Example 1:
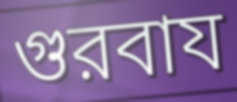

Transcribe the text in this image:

গুরবায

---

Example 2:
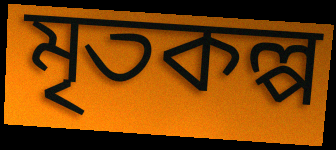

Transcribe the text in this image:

মৃতকল্প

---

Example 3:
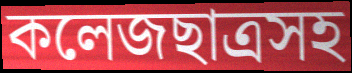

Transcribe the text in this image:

কলেজছাত্রসহ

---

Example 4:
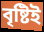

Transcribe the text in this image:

বৃষ্টিই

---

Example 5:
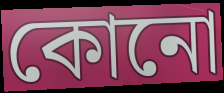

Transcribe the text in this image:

কোনো